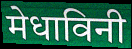
मेधाविनी